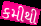
કમીથી